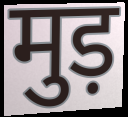
मुड़